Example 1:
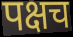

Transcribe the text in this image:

पक्षच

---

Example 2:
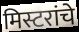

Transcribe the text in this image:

मिस्टरांचे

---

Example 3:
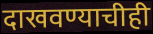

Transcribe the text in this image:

दाखवण्याचीही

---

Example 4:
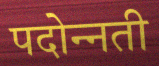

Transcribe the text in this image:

पदोन्‍नती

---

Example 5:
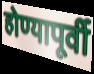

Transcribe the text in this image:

होण्यापूर्वी